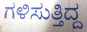
ಗಳಿಸುತ್ತಿದ್ದ